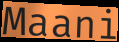
Maani